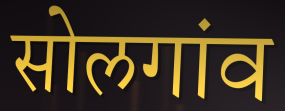
सोलगांव